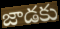
జాడకు